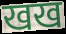
खख